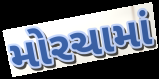
મોરચામાં